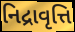
નિદ્રાવૃત્તિ